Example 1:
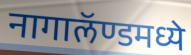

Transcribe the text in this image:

नागालॅण्डमध्ये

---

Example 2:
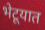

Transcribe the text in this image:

भेटूयात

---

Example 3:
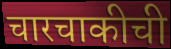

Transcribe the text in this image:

चारचाकीची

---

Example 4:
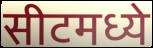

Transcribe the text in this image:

सीटमध्ये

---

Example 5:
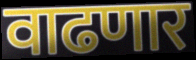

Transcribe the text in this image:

वाढणार